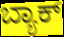
ಬ್ಯಾಕ್